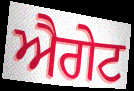
ਐਗੇਟ